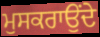
ਮੁਸਕਰਾਉਂਦੇ